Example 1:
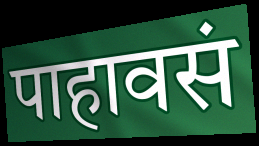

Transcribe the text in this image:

पाहावसं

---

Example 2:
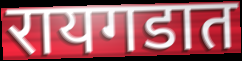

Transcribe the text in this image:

रायगडात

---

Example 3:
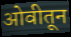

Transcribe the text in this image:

ओवीतून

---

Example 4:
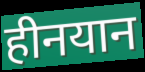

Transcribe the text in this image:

हीनयान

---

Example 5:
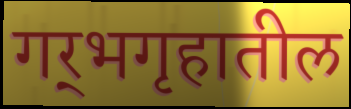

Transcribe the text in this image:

गर्भगृहातील